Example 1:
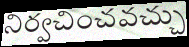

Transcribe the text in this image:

నిర్వచించవచ్చు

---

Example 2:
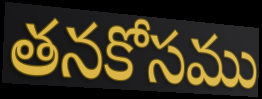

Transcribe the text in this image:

తనకోసము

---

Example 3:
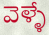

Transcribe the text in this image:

వెళ్ళే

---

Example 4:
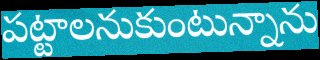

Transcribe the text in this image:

పట్టాలనుకుంటున్నాను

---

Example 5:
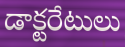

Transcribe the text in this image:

డాక్టరేటులు